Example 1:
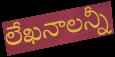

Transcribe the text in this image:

లేఖనాలన్నీ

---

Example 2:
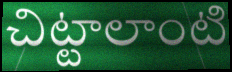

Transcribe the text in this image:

చిట్టాలాంటి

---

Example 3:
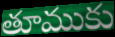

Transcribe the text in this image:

తూముకు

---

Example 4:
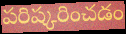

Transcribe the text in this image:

పరిష్కరించడం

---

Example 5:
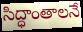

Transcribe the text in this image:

సిద్ధాంతాలనే